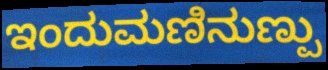
ಇಂದುಮಣಿನುಣ್ಪು